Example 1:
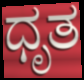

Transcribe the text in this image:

ಧೃತ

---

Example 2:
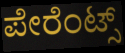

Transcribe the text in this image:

ಪೇರೆಂಟ್ಸ್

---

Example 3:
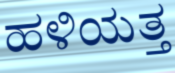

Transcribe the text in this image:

ಹಳಿಯತ್ತ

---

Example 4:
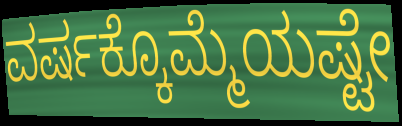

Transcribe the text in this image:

ವರ್ಷಕ್ಕೊಮ್ಮೆಯಷ್ಟೇ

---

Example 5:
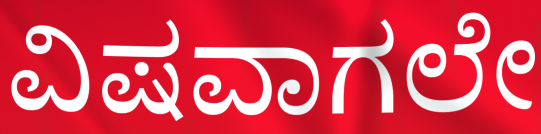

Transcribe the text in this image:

ವಿಷವಾಗಲೇ